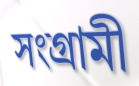
সংগ্ৰামী